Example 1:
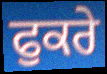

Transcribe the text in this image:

ਫੁਕਰੇ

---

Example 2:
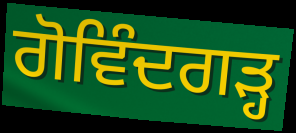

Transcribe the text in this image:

ਗੋਵਿੰਦਗੜ੍ਹ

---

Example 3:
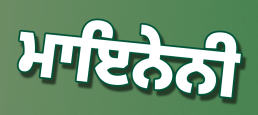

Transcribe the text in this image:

ਮਾਇਨੇਨੀ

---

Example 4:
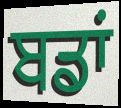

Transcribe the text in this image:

ਬਡਾਂ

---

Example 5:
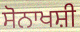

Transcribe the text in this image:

ਸੋਨਾਖਸ਼ੀ